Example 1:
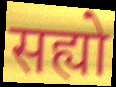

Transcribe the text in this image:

सह्यो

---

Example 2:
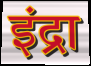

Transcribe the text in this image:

इंद्रा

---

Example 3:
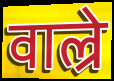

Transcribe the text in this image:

वाल्रे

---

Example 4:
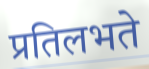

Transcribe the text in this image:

प्रतिलभते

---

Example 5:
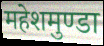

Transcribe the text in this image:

महेशमुण्डा